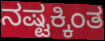
ನಷ್ಟಕ್ಕಿಂತ